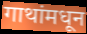
गाथांमधून